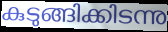
കുടുങ്ങിക്കിടന്നു